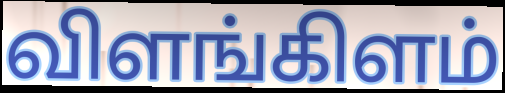
விளங்கிளம்